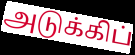
அடுக்கிப்